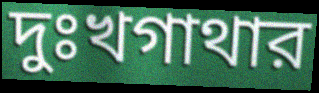
দুঃখগাথার